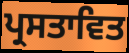
ਪ੍ਰਸਤਾਵਿਤ